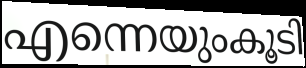
എന്നെയുംകൂടി